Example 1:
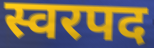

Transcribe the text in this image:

स्वरपद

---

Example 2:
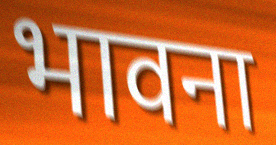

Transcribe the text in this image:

भावना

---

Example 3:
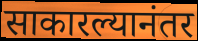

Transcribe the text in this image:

साकारल्यानंतर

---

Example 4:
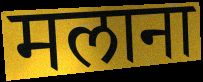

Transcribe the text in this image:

मलाना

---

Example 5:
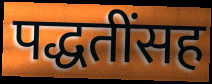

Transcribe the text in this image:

पद्धतींसह